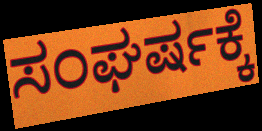
ಸಂಘರ್ಷಕ್ಕೆ